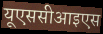
यूएससीआइएस